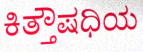
ಕಿತ್ತೌಷಧಿಯ